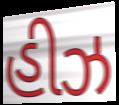
હીઝ